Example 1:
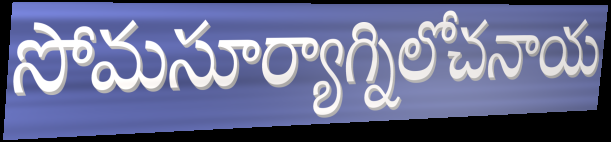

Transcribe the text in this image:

సోమసూర్యాగ్నిలోచనాయ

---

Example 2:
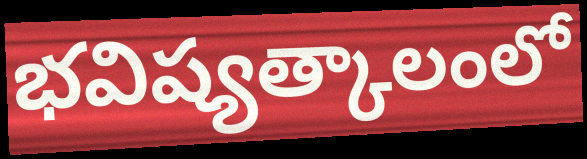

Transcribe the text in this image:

భవిష్యత్కాలంలో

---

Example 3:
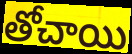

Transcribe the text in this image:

తోచాయి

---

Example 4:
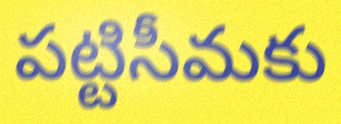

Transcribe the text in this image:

పట్టిసీమకు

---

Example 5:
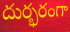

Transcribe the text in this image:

దుర్భరంగా